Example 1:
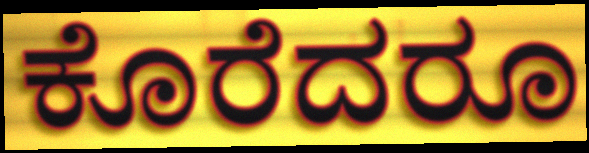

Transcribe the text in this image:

ಕೊರೆದರೂ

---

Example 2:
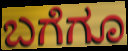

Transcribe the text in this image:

ಬಗೆಗೂ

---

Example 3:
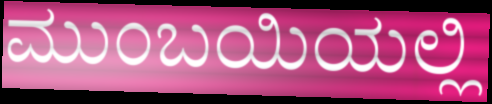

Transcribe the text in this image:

ಮುಂಬಯಿಯಲ್ಲಿ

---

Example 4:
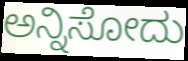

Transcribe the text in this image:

ಅನ್ನಿಸೋದು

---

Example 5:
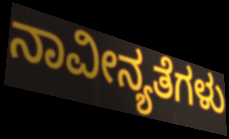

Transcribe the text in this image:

ನಾವೀನ್ಯತೆಗಳು